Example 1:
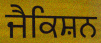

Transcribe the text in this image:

ਜੈਕਿਸ਼ਨ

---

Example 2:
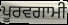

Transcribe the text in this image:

ਪੂਰਵਗਾਮੀ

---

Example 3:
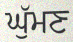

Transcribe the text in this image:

ਘੁੱਮਣ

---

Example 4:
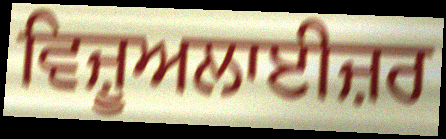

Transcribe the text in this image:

ਵਿਜ਼ੂਅਲਾਈਜ਼ਰ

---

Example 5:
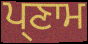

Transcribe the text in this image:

ਪ੍ਣਾਮ